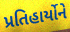
પ્રતિહાર્યોને